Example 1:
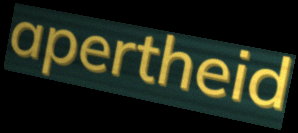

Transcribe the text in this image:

apertheid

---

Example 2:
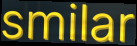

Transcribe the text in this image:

smilar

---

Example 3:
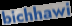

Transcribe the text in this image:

bichhawi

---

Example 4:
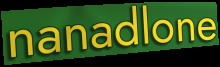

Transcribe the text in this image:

nanadlone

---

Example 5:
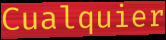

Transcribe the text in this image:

Cualquier